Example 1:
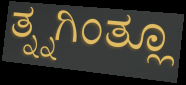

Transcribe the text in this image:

ತ್ನ್ನಗಿಂತ್ಲೂ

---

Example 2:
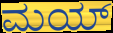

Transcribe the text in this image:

ಮಯ್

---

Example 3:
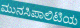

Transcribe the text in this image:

ಮುನಸಿಪಾಲಿಟಿಯ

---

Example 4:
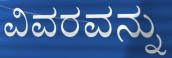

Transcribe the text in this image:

ವಿವರವನ್ನು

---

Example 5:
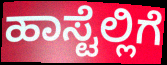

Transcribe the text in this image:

ಹಾಸ್ಟೆಲ್ಲಿಗೆ